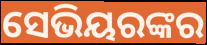
ସେଭିୟରଙ୍କର